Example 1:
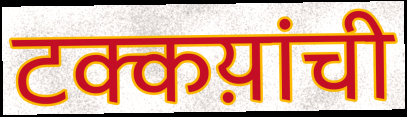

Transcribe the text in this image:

टक्कय़ांची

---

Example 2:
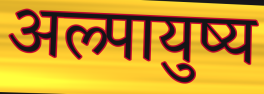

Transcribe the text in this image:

अल्पायुष्य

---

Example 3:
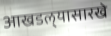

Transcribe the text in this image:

आखडल्यासारखे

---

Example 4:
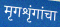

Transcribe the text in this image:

मृगशृंगांचा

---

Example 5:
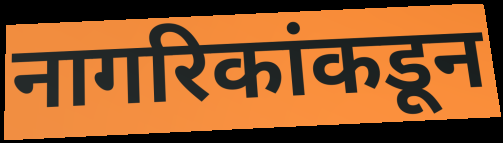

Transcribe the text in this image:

नागरिकांकडून